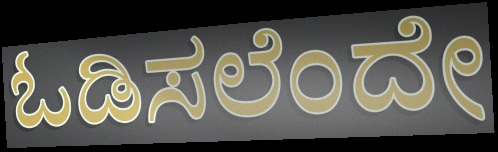
ಓಡಿಸಲೆಂದೇ